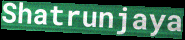
Shatrunjaya